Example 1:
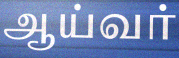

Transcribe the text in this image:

ஆய்வர்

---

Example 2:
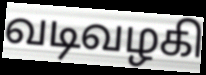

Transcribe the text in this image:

வடிவழகி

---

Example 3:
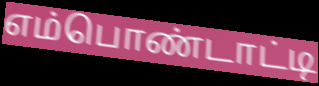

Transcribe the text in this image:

எம்பொண்டாட்டி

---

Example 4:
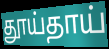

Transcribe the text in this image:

தூய்தாய்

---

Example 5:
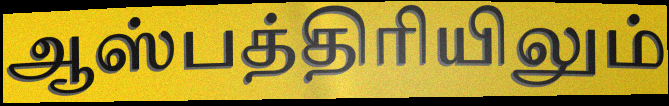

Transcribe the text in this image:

ஆஸ்பத்திரியிலும்